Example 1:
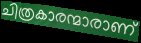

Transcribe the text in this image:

ചിത്രകാരന്മാരാണ്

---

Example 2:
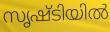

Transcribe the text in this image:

സൃഷ്ടിയിൽ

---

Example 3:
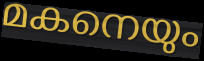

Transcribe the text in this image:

മകനെയും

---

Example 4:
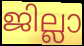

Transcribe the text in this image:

ജില്ലാ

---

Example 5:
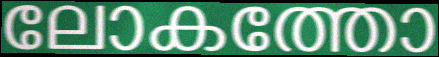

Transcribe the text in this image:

ലോകത്തോ